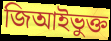
জিআইভুক্ত